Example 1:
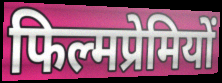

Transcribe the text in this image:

फिल्मप्रेमियों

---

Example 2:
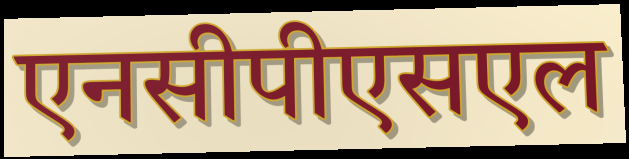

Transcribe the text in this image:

एनसीपीएसएल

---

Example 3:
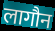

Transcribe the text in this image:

लागौन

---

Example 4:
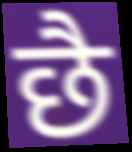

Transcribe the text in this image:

छै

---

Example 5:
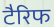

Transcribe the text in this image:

टैरिफ